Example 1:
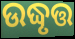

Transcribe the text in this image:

ଉଦ୍ଧୃତ୍ତ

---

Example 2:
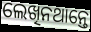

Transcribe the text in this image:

ଲେଖିନଥାନ୍ତେ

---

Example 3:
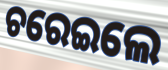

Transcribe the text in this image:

ଚରେଇଲେ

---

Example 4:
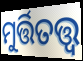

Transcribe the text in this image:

ମୁର୍ତ୍ତିତତ୍ତ୍ବ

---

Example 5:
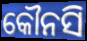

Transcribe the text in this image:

କୌନସି